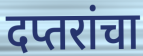
दप्तरांचा